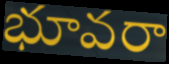
భూవరా